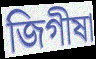
জিগীষা